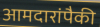
आमदारांपैकी